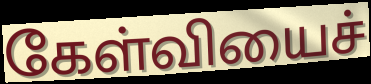
கேள்வியைச்